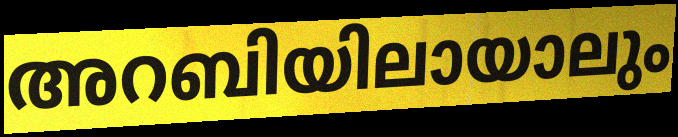
അറബിയിലായാലും